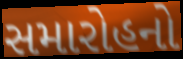
સમારોહનો